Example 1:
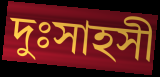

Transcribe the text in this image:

দুঃসাহসী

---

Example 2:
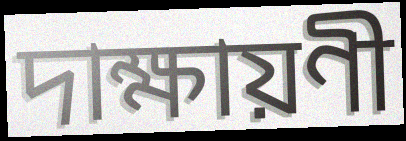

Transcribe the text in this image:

দাক্ষায়ণী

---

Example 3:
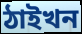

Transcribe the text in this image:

ঠাইখন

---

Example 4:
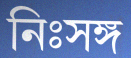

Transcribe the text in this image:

নিঃসঙ্গ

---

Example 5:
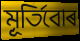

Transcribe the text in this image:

মূৰ্তিবোৰ